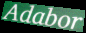
Adabor